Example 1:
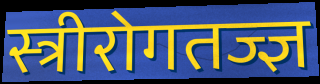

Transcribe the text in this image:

स्‍त्रीरोगतज्‍ज्ञ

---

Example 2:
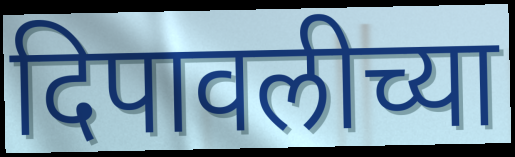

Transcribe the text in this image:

दिपावलीच्या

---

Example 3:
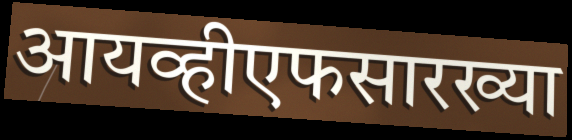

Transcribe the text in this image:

आयव्हीएफसारख्या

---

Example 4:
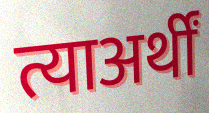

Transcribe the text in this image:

त्याअर्थीं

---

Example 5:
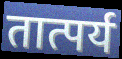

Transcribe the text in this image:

तात्पर्य